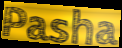
Pasha